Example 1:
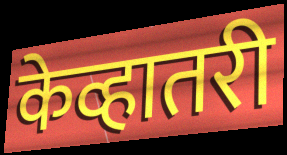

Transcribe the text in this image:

केव्हातरी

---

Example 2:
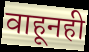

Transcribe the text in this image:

वाहूनही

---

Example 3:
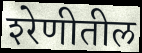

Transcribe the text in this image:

श्रेणीतील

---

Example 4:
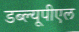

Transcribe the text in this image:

डब्ल्यूपीएल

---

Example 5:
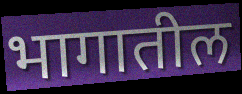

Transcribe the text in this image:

भागातील